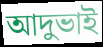
আদুভাই